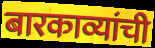
बारकाव्यांची